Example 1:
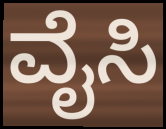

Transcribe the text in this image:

ವೈಸಿ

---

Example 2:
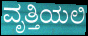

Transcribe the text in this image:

ವೃತ್ತಿಯಲಿ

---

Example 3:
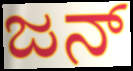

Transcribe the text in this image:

ಜನ್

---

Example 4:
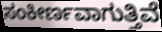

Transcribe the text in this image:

ಸಂಕೀರ್ಣವಾಗುತ್ತಿವೆ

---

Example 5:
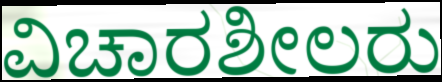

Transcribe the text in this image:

ವಿಚಾರಶೀಲರು